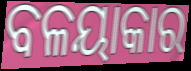
ବଳୟାକାର